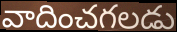
వాదించగలడు